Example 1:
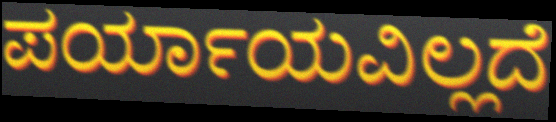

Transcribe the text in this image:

ಪರ್ಯಾಯವಿಲ್ಲದೆ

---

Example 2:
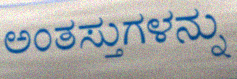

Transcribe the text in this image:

ಅಂತಸ್ತುಗಳನ್ನು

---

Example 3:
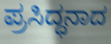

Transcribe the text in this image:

ಪ್ರಸಿದ್ಧನಾದ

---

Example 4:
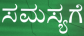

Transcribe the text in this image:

ಸಮಸ್ಯಗೆ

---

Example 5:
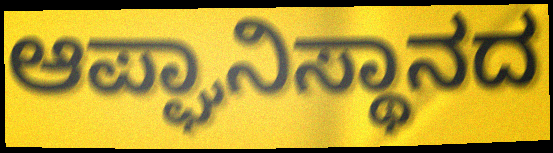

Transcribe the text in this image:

ಆಪ್ಘಾನಿಸ್ಥಾನದ